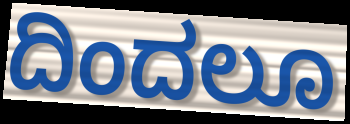
ದಿಂದಲೂ